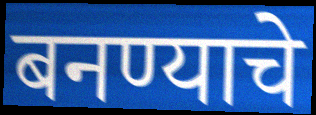
बनण्याचे